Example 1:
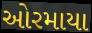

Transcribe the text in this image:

ઓરમાયા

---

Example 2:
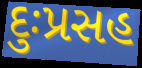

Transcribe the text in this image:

દુઃપ્રસહ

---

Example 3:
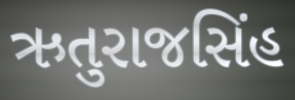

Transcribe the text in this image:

ઋતુરાજસિંહ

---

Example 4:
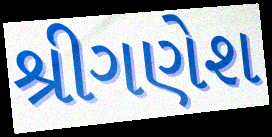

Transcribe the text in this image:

શ્રીગણેશ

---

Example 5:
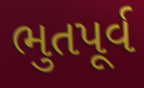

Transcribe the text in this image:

ભુતપૂર્વ